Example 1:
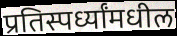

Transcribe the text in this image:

प्रतिस्पर्ध्यांमधील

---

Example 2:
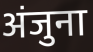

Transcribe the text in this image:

अंजुना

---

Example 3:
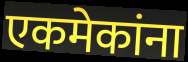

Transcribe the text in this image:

एकमेकांना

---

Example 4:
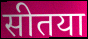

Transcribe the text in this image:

सीतया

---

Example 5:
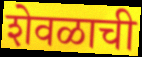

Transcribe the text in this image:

शेवळाची